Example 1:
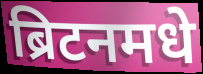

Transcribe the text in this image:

ब्रिटनमधे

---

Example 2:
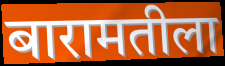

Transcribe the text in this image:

बारामतीला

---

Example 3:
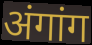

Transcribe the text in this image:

अंगांग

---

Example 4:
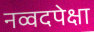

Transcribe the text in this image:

नव्वदपेक्षा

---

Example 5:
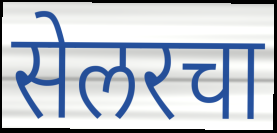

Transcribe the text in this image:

सेलरचा